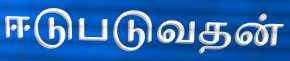
ஈடுபடுவதன்